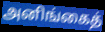
அனிங்கைத்